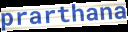
prarthana